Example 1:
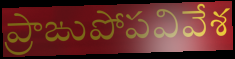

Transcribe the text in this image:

ప్రాఙుపోపవివేశ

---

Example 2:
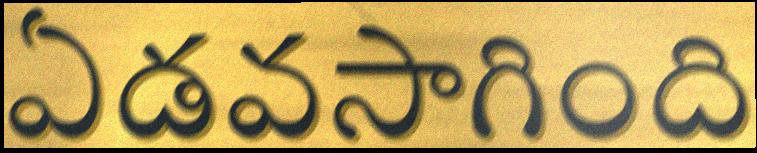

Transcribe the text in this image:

ఏడవసాగింది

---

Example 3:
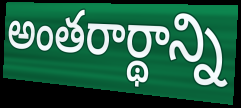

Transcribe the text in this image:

అంతరార్థాన్ని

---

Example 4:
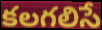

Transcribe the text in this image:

కలగలిసే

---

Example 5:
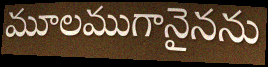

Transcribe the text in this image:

మూలముగానైనను